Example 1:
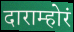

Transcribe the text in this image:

दाराम्होरं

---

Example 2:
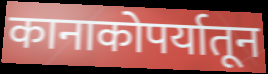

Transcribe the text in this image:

कानाकोपर्यातून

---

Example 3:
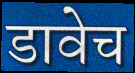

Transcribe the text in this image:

डावेच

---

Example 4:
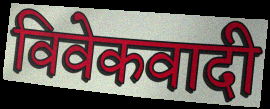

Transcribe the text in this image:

विवेकवादी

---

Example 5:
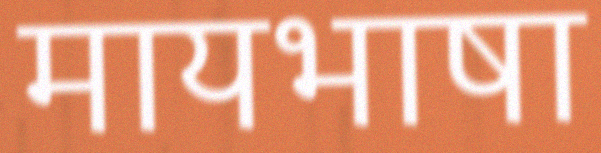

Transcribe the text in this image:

मायभाषा